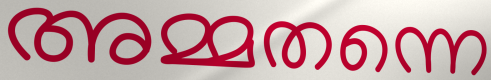
അമ്മതന്നെ